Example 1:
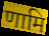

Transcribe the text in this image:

णामि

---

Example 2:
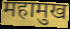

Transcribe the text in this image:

महामुख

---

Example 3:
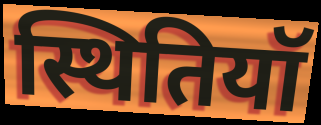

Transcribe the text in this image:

स्थितियॉ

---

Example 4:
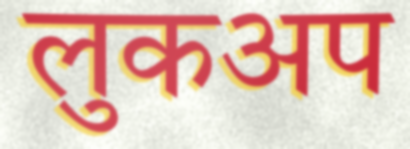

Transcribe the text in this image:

लुकअप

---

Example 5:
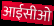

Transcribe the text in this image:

आईसीओ